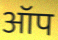
ऑप